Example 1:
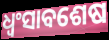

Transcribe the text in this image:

ଧ୍ଵଂସାବଶେଷ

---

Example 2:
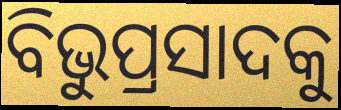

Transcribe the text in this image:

ବିଭୁପ୍ରସାଦକୁ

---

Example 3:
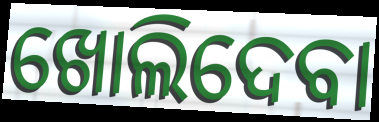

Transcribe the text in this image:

ଖୋଲିଦେବା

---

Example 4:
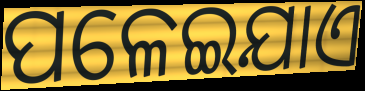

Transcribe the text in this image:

ପଳେଇଯାଏ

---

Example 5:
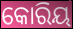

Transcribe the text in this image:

କୋରିୟ